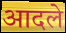
आदले